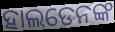
ହାଲଡେନଙ୍କ